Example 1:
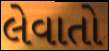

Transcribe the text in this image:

લેવાતો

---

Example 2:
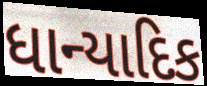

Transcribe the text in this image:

ધાન્યાદિક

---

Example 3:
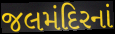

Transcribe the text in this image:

જલમંદિરનાં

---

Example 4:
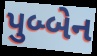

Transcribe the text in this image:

પુબ્બેન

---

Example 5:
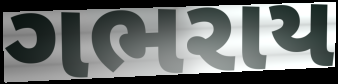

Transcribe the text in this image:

ગભરાય